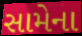
સામેના